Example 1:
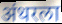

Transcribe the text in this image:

अंथरला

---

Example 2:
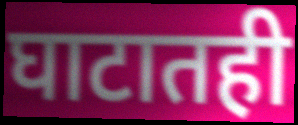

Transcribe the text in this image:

घाटातही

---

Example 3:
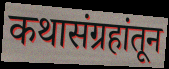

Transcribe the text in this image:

कथासंग्रहांतून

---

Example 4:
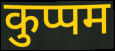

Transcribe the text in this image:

कुप्पम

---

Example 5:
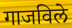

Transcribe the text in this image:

गाजविले